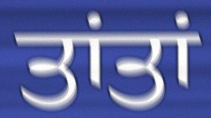
ਤਾਂਤਾਂ